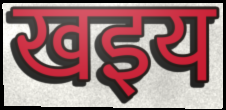
खइय